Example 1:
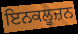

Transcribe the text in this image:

ਇਨਕਲੂਜ਼ਨ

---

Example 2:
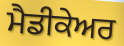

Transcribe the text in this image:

ਮੈਡੀਕੇਅਰ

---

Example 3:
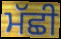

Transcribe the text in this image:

ਮੱਛੀ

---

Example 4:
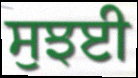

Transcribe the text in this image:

ਸੁਝਈ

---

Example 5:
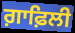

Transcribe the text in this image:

ਗ਼ਾਫ਼ਿਲੀ